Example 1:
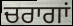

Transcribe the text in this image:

ਚਰਾਗਾਂ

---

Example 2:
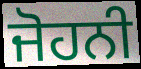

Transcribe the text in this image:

ਜੋਹਨੀ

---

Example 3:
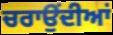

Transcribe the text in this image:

ਚਰਾਉਂਦੀਆਂ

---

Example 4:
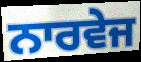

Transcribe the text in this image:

ਨਾਰਵੇਜ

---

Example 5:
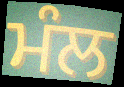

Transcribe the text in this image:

ਮੰਲ